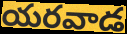
యరవాడ